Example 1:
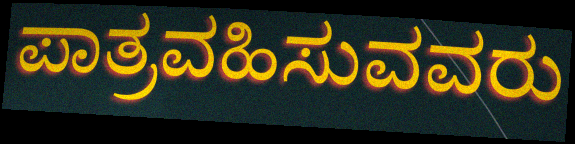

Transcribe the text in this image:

ಪಾತ್ರವಹಿಸುವವರು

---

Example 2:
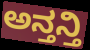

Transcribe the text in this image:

ಅನ್ತನ್ತಿ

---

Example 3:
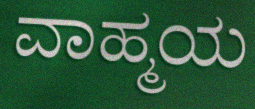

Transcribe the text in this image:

ವಾಹ್ಮಯ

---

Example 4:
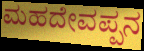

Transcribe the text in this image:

ಮಹದೇವಪ್ಪನ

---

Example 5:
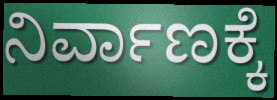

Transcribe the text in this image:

ನಿರ್ವಾಣಕ್ಕೆ